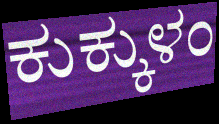
ಕುಕ್ಕುಳಂ